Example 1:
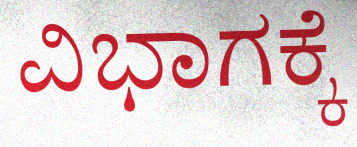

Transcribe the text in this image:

ವಿಭಾಗಕ್ಕೆ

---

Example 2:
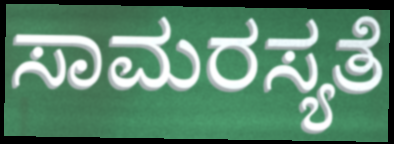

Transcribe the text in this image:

ಸಾಮರಸ್ಯತೆ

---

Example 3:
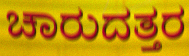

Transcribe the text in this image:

ಚಾರುದತ್ತರ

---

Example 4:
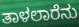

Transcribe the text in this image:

ತಾಳಲಾರೆನು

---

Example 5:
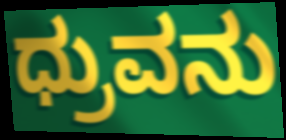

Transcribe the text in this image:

ಧ್ರುವನು